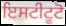
ਇਸਟੀਟੂਟੋ